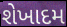
શેખાદમ